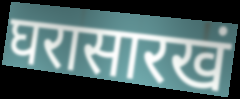
घरासारखं